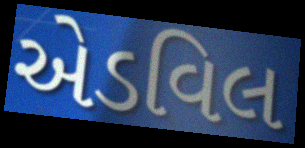
એડવિલ